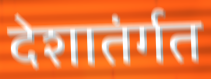
देशातंर्गत